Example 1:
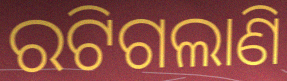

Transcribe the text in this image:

ରଟିଗଲାଣି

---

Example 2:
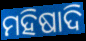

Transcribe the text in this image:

ମହିଷାଦି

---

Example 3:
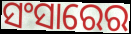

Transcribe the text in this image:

ସଂସାରେର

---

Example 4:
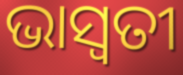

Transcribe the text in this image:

ଭାସ୍ଵତୀ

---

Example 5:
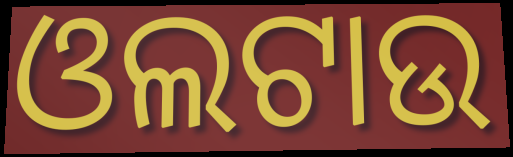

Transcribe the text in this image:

ଓଲଟାଉ